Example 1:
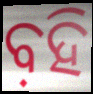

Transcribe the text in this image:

ବ଼ହି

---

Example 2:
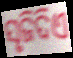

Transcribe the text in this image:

ସୃଜିଦିଏ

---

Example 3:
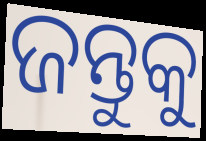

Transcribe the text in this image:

ଜନ୍ତୁକୁ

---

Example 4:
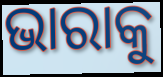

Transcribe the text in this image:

ଭାରାକୁ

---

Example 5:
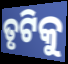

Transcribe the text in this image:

ତୃଟିକୁ